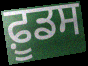
ਫ਼ੂਡਸ